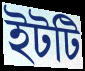
ইটটি